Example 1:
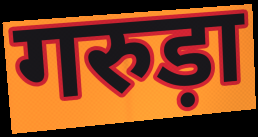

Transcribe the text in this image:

गरुड़ा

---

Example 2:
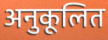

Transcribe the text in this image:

अनुकूलित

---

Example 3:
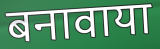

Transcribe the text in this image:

बनावाया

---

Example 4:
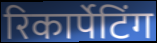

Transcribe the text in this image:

रिकार्पेटिंग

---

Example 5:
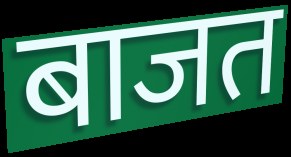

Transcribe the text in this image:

बाजत